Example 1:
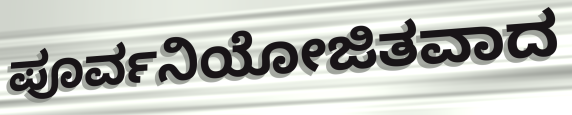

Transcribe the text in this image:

ಪೂರ್ವನಿಯೋಜಿತವಾದ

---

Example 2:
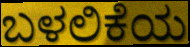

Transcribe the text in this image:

ಬಳಲಿಕೆಯ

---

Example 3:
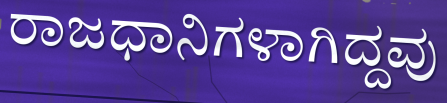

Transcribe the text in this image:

ರಾಜಧಾನಿಗಳಾಗಿದ್ದವು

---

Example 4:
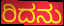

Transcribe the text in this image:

ರಿದನು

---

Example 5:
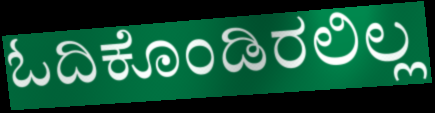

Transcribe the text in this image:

ಓದಿಕೊಂಡಿರಲಿಲ್ಲ